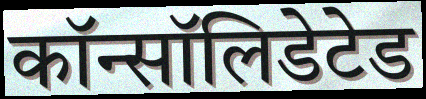
कॉन्सॉलिडेटेड